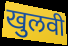
खुलवी